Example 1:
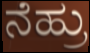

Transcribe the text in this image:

ನೆಹ್ರು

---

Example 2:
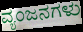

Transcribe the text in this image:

ವ್ಯಂಜನಗಳು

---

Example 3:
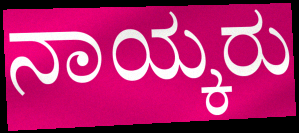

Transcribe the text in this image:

ನಾಯ್ಕರು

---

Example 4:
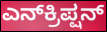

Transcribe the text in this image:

ಎನ್‌ಕ್ರಿಪ್ಷನ್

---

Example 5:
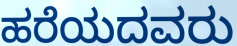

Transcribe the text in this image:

ಹರೆಯದವರು